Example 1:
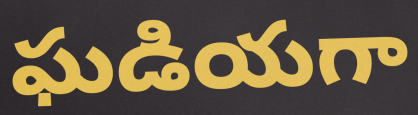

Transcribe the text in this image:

ఘడియగా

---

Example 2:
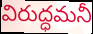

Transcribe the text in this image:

విరుద్ధమనీ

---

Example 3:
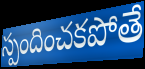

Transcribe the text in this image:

స్పందించకపోతే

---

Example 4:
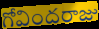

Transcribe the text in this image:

గోవిందరాజు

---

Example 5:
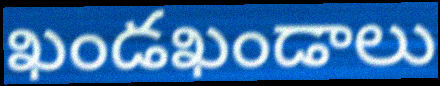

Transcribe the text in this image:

ఖండఖండాలు